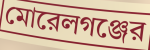
মোরেলগঞ্জের